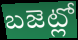
బజెట్లో